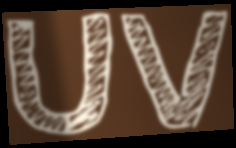
UV